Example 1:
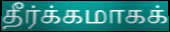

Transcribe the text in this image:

தீர்க்கமாகக்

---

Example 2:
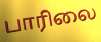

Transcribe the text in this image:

பாரிலை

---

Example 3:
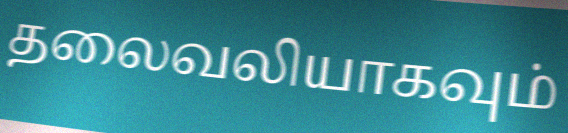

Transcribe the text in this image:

தலைவலியாகவும்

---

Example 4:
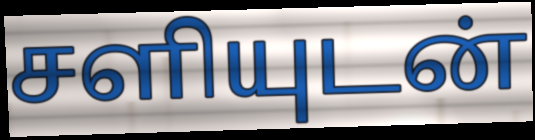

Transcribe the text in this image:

சளியுடன்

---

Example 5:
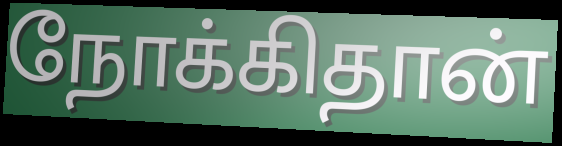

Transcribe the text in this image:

நோக்கிதான்